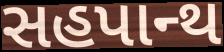
સહપાન્થ